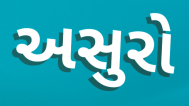
અસુરો